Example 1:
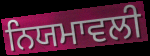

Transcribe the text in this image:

ਨਿਯਮਾਵਲੀ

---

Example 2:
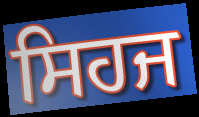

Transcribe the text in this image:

ਸਿਹਜ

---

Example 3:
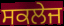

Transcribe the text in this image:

ਸਕਲੇਜ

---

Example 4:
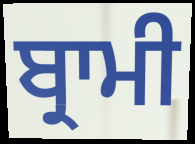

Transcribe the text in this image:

ਬ੍ਰਾਮੀ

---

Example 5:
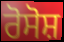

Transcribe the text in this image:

ਰੋਸੋਸ਼